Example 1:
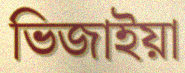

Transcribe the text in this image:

ভিজাইয়া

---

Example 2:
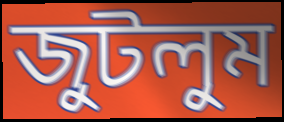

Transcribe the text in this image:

জুটলুম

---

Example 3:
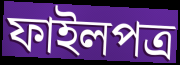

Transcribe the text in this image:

ফাইলপত্র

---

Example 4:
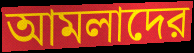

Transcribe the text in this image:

আমলাদের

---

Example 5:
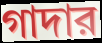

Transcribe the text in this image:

গাদার